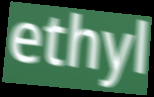
ethyl